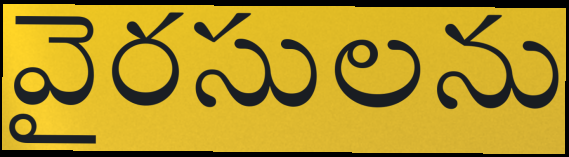
వైరసులను